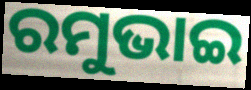
ରମୁଭାଇ